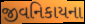
જીવનિકાયના